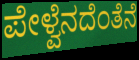
ಪೇಳ್ವೆನದೆಂತೆನೆ